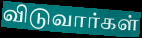
விடுவார்கள்